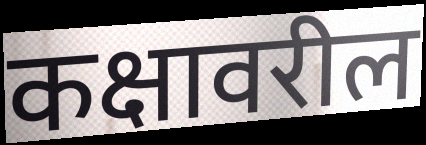
कक्षावरील